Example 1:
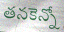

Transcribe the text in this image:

తనకెన్నో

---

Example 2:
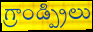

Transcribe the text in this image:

గ్రాండ్ప్రిలు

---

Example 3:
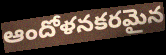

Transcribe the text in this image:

ఆందోళనకరమైన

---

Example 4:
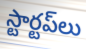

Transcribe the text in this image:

స్టార్టప్‌లు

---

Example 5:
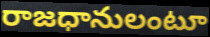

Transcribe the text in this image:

రాజధానులంటూ